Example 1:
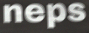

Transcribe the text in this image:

neps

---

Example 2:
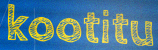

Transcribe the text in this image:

kootitu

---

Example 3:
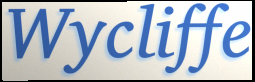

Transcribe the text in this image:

Wycliffe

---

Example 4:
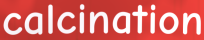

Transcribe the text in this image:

calcination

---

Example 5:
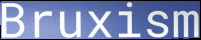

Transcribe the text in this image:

Bruxism